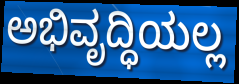
ಅಭಿವೃದ್ಧಿಯಲ್ಲ